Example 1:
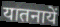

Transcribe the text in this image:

यातनायें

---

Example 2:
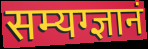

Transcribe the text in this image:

सम्यग्ज्ञानं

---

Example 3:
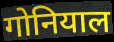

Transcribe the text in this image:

गोनियाल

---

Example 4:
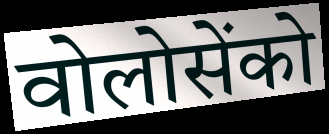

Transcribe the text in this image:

वोलोसेंको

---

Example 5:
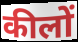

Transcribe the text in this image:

कीलों